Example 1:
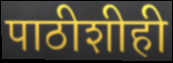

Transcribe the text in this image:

पाठीशीही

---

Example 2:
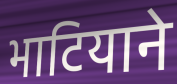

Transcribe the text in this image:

भाटियाने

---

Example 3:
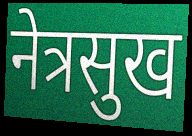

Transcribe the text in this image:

नेत्रसुख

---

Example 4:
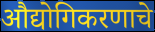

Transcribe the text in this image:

औद्योगिकरणाचे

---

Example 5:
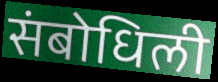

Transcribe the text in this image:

संबोधिली